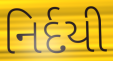
નિર્દયી